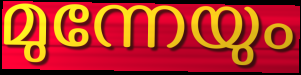
മുന്നേയും